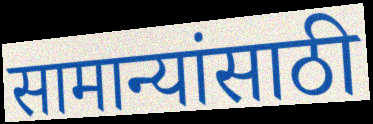
सामान्यांसाठी